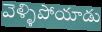
వెళ్ళిపోయాడు